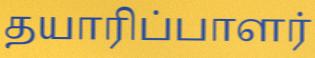
தயாரிப்பாளர்